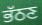
ਭੱਠਣ